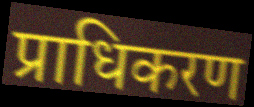
प्राधिकरण